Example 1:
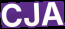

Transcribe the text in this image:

CJA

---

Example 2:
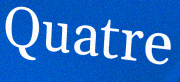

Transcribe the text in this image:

Quatre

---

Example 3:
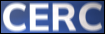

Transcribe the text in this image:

CERC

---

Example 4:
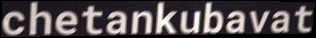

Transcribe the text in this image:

chetankubavat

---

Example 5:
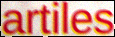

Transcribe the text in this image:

artiles